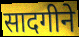
सादगीने